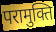
परामुक्ति